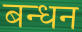
बन्धन